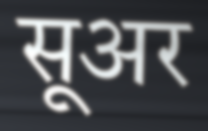
सूअर